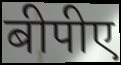
बीपीए